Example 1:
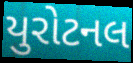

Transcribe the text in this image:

યુરોટનલ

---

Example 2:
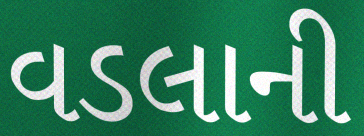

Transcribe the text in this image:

વડલાની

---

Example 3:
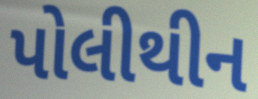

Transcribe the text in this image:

પોલીથીન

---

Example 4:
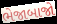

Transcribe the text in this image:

ભેજાબાજો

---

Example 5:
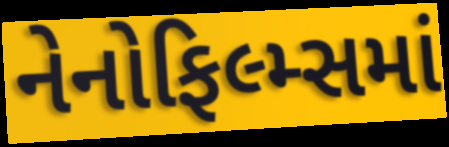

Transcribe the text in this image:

નેનોફિલ્મ્સમાં